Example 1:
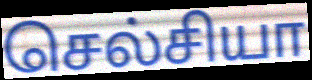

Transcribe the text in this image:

செல்சியா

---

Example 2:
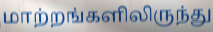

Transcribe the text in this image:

மாற்றங்களிலிருந்து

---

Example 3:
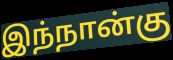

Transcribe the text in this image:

இந்நான்கு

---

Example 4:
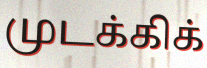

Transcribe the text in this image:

முடக்கிக்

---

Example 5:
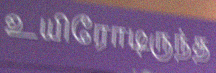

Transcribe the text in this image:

உயிரோடிருந்த